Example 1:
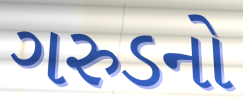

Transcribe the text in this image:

ગરુડનો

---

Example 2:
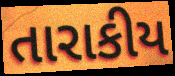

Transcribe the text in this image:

તારાકીય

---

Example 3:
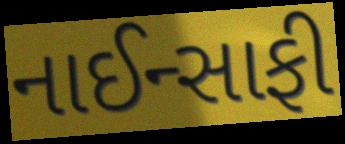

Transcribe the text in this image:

નાઈન્સાફી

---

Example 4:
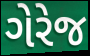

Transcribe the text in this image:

ગેરેજ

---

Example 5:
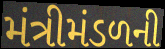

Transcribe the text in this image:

મંત્રીમંડળની